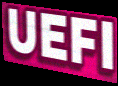
UEFI